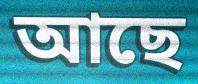
আছে